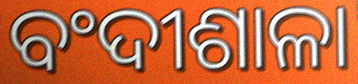
ବଂଦୀଶାଳା